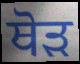
ਥੋੜ